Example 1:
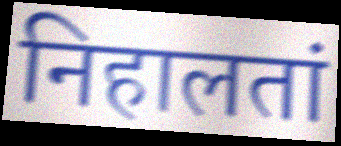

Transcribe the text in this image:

निहालतां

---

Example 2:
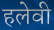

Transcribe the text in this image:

हलेवी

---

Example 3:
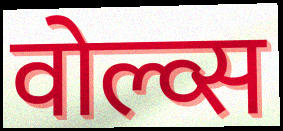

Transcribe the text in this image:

वोल्व्स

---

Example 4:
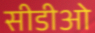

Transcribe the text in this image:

सीडीओ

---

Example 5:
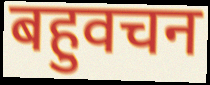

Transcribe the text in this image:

बहुवचन